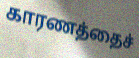
காரணத்தைச்